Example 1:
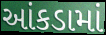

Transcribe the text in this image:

આંકડામાં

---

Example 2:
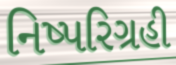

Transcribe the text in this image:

નિષ્પરિગ્રહી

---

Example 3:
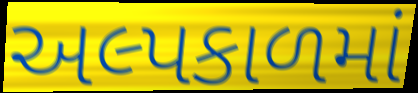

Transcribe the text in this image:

અલ્પકાળમાં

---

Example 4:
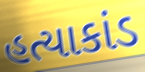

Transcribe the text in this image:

હત્યાકાંડ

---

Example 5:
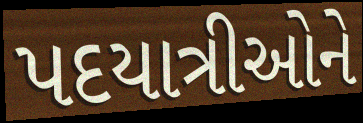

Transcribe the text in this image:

પદયાત્રીઓને